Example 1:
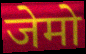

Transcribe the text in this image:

जेमो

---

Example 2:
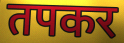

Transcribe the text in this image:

तपकर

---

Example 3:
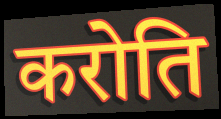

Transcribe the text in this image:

करोति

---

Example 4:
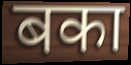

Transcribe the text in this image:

बका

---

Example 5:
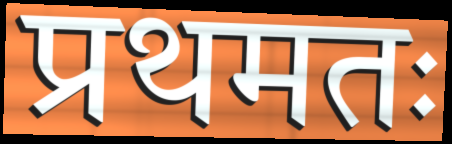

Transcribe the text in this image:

प्रथमतः